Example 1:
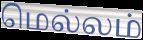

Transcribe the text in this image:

மெல்லம்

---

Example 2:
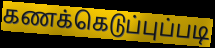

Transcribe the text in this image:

கணக்கெடுப்புப்படி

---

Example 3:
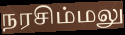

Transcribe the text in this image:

நரசிம்மலு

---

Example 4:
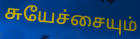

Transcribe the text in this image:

சுயேச்சையும்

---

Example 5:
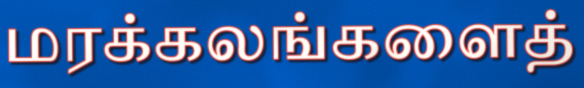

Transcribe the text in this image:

மரக்கலங்களைத்